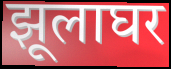
झूलाघर